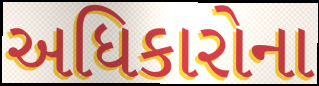
અધિકારોના